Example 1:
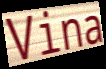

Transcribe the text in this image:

Vina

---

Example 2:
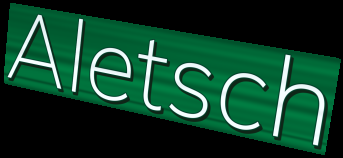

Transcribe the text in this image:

Aletsch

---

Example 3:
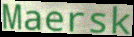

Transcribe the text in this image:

Maersk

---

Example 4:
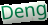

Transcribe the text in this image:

Deng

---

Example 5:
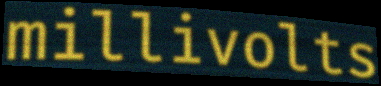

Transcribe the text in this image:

millivolts